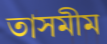
তাসমীম